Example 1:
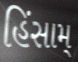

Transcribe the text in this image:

હિંસામ્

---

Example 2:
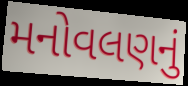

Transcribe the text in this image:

મનોવલણનું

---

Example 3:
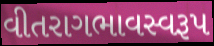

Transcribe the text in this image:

વીતરાગભાવસ્વરૂપ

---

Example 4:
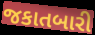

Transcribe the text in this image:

જકાતબારી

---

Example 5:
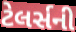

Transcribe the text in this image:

ટેલર્સની